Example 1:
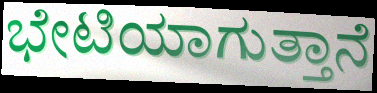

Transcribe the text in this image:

ಭೇಟಿಯಾಗುತ್ತಾನೆ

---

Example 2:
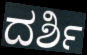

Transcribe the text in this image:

ದರ್ಶಿ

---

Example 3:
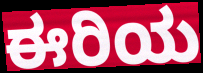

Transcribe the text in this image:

ಈರಿಯ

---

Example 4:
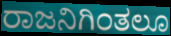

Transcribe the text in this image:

ರಾಜನಿಗಿಂತಲೂ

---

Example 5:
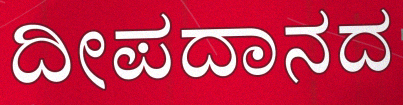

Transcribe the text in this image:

ದೀಪದಾನದ